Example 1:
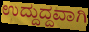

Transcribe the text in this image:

ಉದ್ದುದ್ದವಾಗಿ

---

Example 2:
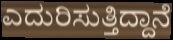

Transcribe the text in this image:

ಎದುರಿಸುತ್ತಿದ್ದಾನೆ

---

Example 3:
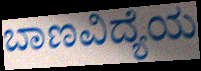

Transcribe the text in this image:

ಬಾಣವಿದ್ಯೆಯ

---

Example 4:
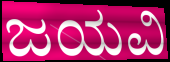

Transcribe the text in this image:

ಜಯವಿ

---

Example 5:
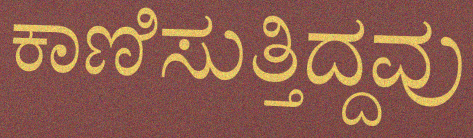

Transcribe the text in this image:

ಕಾಣಿಸುತ್ತಿದ್ದವು